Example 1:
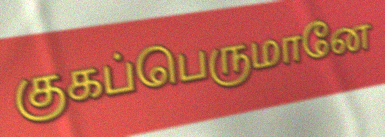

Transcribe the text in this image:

குகப்பெருமானே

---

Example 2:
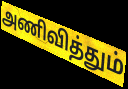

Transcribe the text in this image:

அணிவித்தும்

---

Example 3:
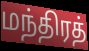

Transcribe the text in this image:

மந்திரத்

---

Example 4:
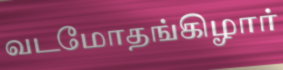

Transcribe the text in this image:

வடமோதங்கிழார்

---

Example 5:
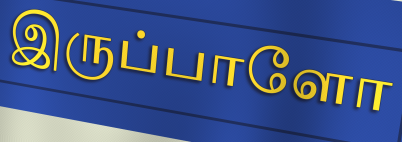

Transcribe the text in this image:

இருப்பாளோ